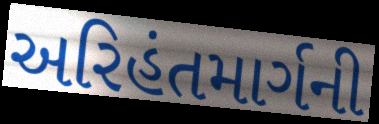
અરિહંતમાર્ગની